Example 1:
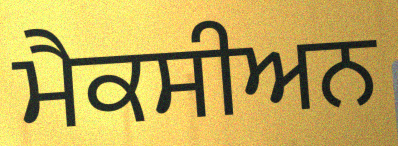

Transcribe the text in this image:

ਮੈਕਸੀਅਨ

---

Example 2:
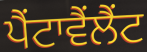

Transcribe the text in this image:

ਪੈਂਟਾਵੈਂਲੈਂਟ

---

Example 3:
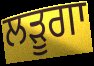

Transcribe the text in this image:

ਲੜੂਗਾ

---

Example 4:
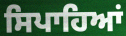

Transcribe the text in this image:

ਸਿਪਾਹਿਆਂ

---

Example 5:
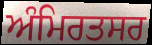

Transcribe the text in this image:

ਅੰਮਿਰਤਸਰ